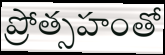
ప్రోత్సహంతో